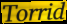
Torrid